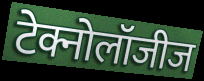
टेक्नोलॉजीज